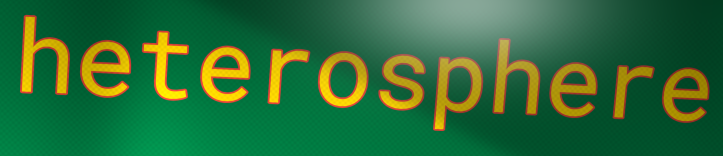
heterosphere